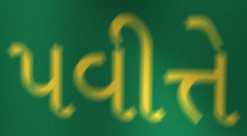
પવીત્તે